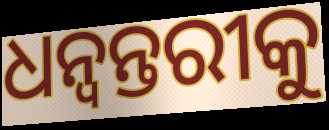
ଧନ୍ବନ୍ତରୀକୁ